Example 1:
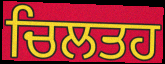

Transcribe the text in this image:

ਚਿਲਤਹ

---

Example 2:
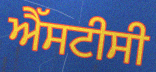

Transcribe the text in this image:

ਐੱਸਟੀਸੀ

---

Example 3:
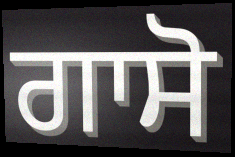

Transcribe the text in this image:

ਗਾਸੋ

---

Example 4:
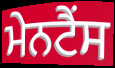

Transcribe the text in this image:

ਮੇਨਟੈਂਸ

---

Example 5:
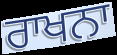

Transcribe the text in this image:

ਰਾਖਨਾ